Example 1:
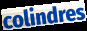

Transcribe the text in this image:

colindres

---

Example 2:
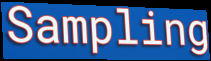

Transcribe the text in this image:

Sampling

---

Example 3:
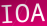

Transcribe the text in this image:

IOA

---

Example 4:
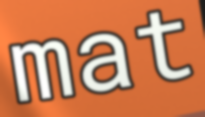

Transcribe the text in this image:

mat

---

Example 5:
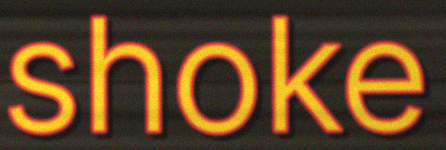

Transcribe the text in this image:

shoke